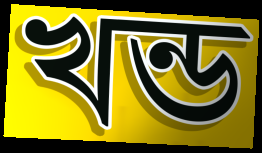
খন্ড